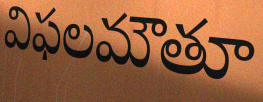
విఫలమౌతూ